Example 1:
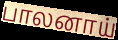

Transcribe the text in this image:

பாலனாய்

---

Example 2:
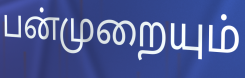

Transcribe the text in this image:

பன்முறையும்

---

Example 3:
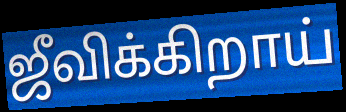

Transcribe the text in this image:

ஜீவிக்கிறாய்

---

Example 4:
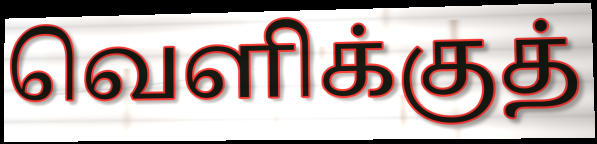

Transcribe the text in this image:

வெளிக்குத்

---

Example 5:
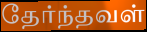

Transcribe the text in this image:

தேர்ந்தவள்